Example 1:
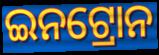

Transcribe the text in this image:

ଇନଟ୍ରୋନ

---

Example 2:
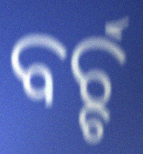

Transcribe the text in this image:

ବର୍ଚ୍ଚ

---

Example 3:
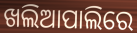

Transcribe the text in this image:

ଖଲିଆପାଲିରେ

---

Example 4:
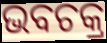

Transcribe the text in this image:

ଭବଚକ୍ର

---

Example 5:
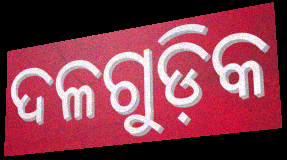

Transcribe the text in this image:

ଦଳଗୁଡ଼ିକ